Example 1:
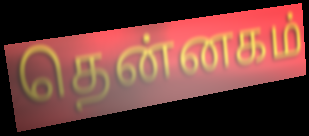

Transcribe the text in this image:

தென்னகம்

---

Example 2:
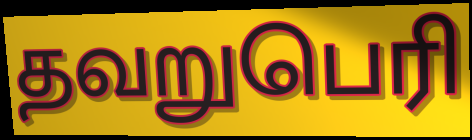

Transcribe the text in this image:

தவறுபெரி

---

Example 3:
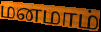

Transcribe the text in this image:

மனமாம்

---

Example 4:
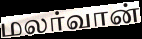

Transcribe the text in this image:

மலர்வான்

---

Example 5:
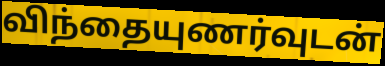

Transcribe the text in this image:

விந்தையுணர்வுடன்